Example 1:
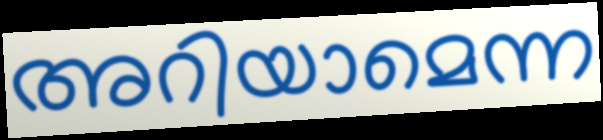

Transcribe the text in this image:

അറിയാമെന്ന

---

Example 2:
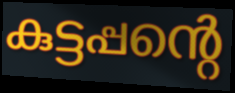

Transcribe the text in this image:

കുട്ടപ്പന്റെ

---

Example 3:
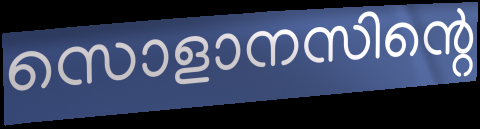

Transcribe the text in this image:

സൊളാനസിന്റെ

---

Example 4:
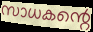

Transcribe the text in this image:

സാധകന്റെ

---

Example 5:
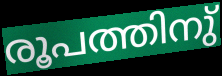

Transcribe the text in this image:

രൂപത്തിനു്